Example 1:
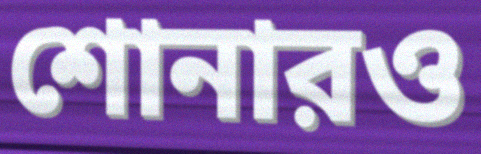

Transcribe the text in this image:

শোনারও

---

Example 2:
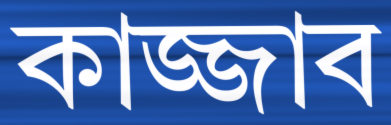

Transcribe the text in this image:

কাজ্জাব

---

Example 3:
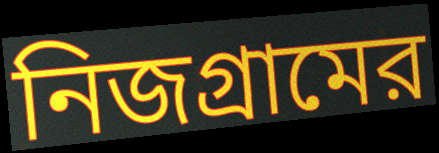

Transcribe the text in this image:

নিজগ্রামের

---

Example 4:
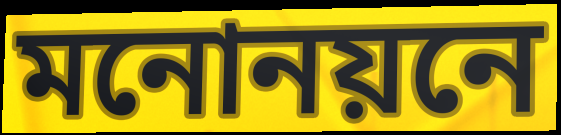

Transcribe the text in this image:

মনোনয়নে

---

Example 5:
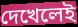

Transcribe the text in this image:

দেখেলেই